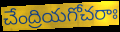
చేంద్రియగోచరాః